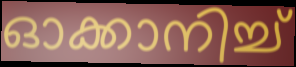
ഓക്കാനിച്ച്